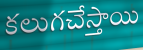
కలుగచేస్తాయి